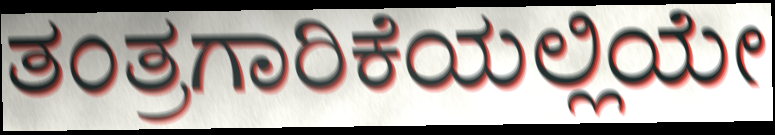
ತಂತ್ರಗಾರಿಕೆಯಲ್ಲಿಯೇ